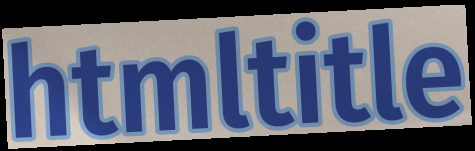
htmltitle